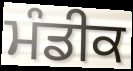
ਮੰਡੀਕ